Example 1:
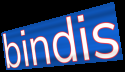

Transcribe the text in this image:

bindis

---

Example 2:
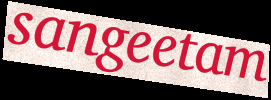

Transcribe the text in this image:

sangeetam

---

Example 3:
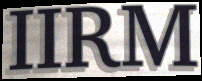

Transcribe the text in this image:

IIRM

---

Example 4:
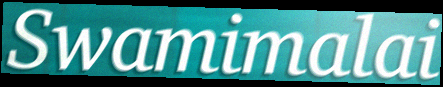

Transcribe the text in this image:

Swamimalai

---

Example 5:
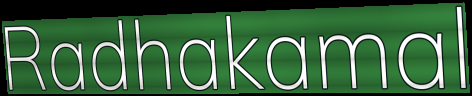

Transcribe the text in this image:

Radhakamal